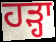
ਹੜ੍ਹਾ